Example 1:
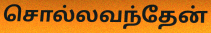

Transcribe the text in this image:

சொல்லவந்தேன்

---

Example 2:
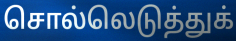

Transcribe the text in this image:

சொல்லெடுத்துக்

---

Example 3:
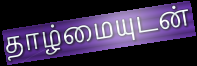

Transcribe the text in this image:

தாழ்மையுடன்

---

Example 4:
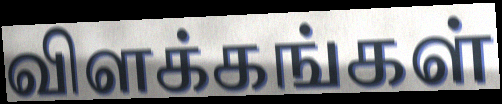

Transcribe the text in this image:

விளக்கங்கள்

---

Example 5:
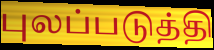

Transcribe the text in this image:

புலப்படுத்தி